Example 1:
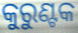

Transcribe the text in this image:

କୁରୁଣ୍ଟକ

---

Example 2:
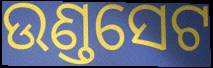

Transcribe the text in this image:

ଉଣ୍ଡସେଟ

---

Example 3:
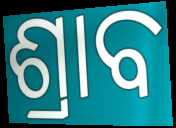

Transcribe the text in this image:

ଶ୍ରାବ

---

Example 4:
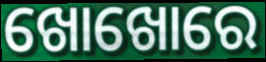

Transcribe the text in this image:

ଖୋଖୋରେ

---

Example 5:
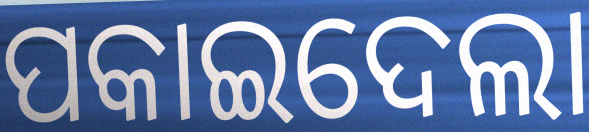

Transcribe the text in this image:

ପକାଇଦେଲା